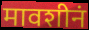
मावशीनं